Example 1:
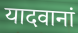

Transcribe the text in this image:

यादवानां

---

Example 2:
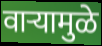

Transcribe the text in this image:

वाऱ्यामुळे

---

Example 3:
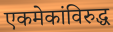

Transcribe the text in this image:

एकमेकांविरुद्ध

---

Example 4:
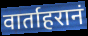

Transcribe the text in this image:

वार्ताहरानं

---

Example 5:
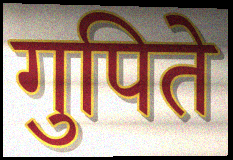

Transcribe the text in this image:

गुपिते